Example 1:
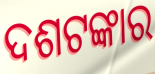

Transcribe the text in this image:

ଦଶଟଙ୍କାର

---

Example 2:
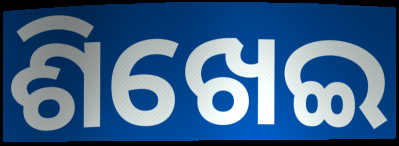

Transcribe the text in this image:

ଶିଖେଇ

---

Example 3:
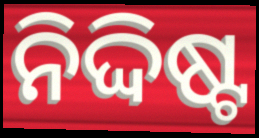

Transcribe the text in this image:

ନିଦ୍ଦିଷ୍ଟ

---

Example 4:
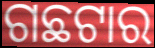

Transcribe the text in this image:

ଗଛଟାର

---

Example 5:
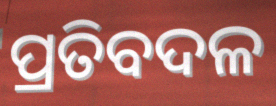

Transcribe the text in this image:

ପ୍ରତିବଦଳ